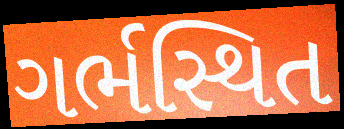
ગર્ભસ્થિત